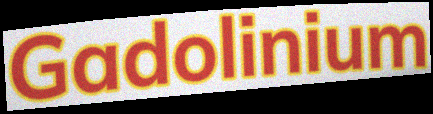
Gadolinium